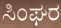
ಸಿಂಘರ